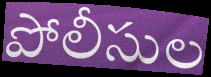
పోలీసుల